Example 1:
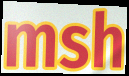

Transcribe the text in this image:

msh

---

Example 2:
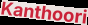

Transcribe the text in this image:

Kanthoori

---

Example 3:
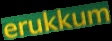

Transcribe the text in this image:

erukkum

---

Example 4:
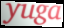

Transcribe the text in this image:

yuga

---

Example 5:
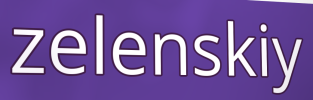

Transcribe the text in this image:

zelenskiy